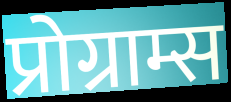
प्रोग्राम्स